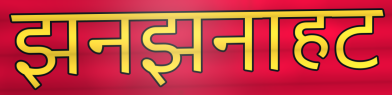
झनझनाहट